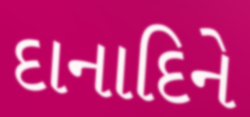
દાનાદિને